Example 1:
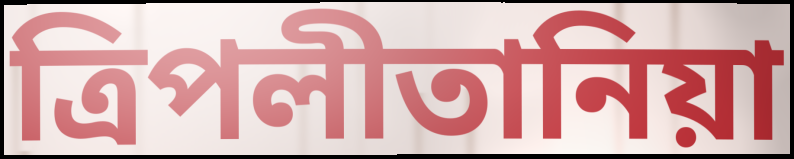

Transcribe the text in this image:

ত্রিপলীতানিয়া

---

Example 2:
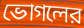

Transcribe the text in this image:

ভোগলের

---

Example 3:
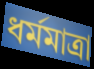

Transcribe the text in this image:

ধর্মমাত্রা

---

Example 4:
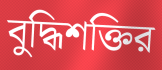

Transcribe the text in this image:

বুদ্ধিশক্তির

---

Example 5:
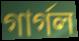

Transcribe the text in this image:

গার্গল